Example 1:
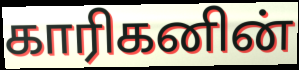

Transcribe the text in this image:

காரிகனின்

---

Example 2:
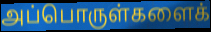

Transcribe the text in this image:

அப்பொருள்களைக்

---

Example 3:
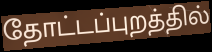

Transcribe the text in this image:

தோட்டப்புறத்தில்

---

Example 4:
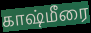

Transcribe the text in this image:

காஷ்மீரை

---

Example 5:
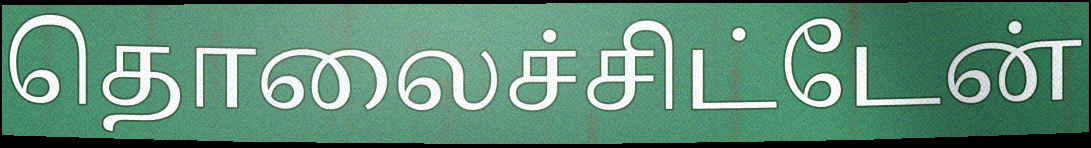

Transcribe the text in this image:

தொலைச்சிட்டேன்